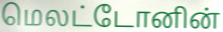
மெலட்டோனின்